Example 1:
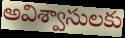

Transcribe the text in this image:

అవిశ్వాసులకు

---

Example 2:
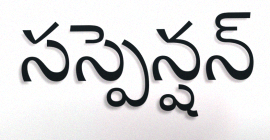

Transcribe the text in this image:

సస్పెన్షన్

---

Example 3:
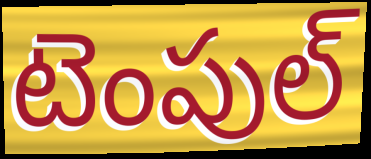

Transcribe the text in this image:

టెంపుల్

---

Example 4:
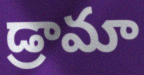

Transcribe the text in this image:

డ్రామా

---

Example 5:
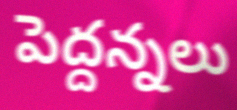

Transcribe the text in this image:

పెద్దన్నలు